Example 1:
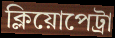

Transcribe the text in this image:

ক্লিয়োপেট্রা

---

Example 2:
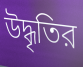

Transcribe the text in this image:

উদ্ধৃতির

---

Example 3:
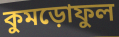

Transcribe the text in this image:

কুমড়োফুল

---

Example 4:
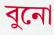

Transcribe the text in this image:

বুনো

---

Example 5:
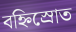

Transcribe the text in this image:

বহ্নিস্রোত